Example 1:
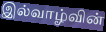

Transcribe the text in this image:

இல்வாழ்வின்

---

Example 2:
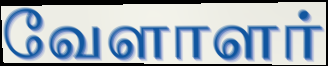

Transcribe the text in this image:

வேளாளர்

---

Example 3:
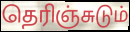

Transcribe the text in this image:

தெரிஞ்சுடும்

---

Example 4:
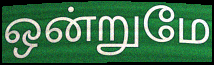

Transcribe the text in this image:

ஒன்றுமே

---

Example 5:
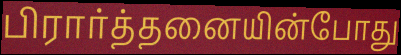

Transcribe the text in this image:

பிரார்த்தனையின்போது